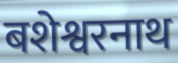
बशेश्वरनाथ